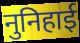
नुनिहाई